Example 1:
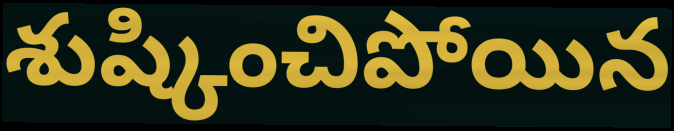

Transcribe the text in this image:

శుష్కించిపోయిన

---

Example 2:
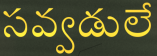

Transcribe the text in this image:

సవ్వడులే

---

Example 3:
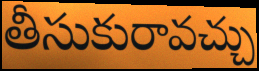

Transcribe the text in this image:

తీసుకురావచ్చు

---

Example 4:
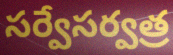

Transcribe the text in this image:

సర్వేసర్వత్ర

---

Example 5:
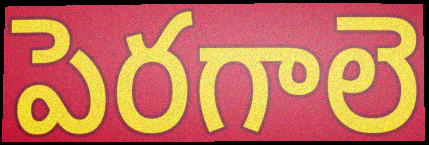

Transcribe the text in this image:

పెరగాలె